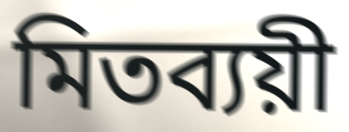
মিতব্যয়ী